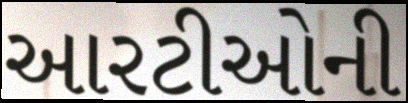
આરટીઓની